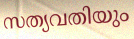
സത്യവതിയും